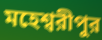
মহেশ্বরীপুর